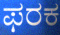
ಫರಕ